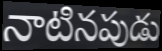
నాటినపుడు